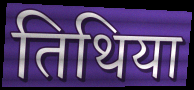
तिथिया